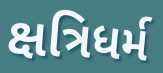
ક્ષત્રિધર્મ